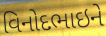
વિનોદભાઇને